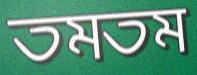
তমতম